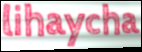
lihaycha